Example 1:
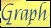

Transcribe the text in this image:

Graph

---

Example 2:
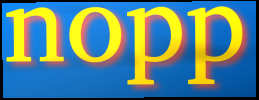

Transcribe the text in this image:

nopp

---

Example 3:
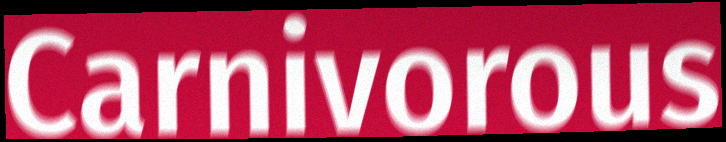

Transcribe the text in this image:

Carnivorous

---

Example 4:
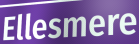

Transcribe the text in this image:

Ellesmere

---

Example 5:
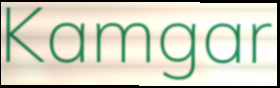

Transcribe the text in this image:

Kamgar